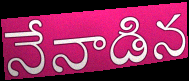
నేనాడిన